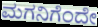
ಮಗನಿಗೆಂದೇ